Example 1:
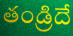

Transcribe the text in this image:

తండ్రిదే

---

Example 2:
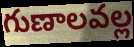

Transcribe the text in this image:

గుణాలవల్ల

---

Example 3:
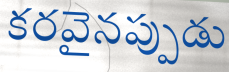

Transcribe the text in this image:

కరవైనప్పుడు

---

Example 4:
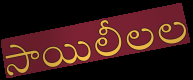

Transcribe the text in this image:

సాయిలీలల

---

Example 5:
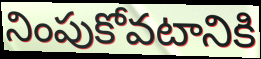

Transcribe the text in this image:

నింపుకోవటానికి